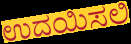
ಉದಯಿಸಲಿ